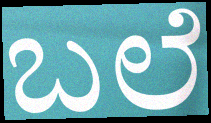
ಬಲೆ